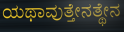
ಯಥಾವುತ್ತೇನತ್ಥೇನ